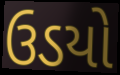
ઉડયો